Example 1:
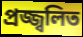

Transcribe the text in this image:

প্রজ্জ্বলিত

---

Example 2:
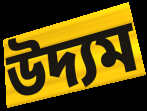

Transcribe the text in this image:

উদ্যম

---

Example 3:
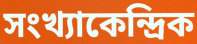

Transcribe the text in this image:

সংখ্যাকেন্দ্রিক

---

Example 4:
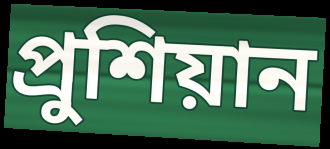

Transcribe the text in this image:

প্রুশিয়ান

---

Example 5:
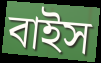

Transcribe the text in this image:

বাইস